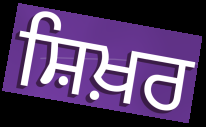
ਸ਼ਿਖ਼ਰ